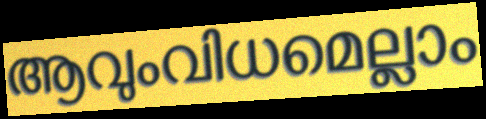
ആവുംവിധമെല്ലാം